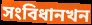
সংবিধানখন